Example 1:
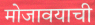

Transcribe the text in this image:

मोजावयाची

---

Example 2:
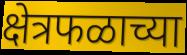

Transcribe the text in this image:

क्षेत्रफळाच्या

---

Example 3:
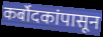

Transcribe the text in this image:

कर्बोदकांपासून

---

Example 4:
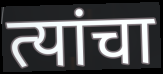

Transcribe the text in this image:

त्‍यांचा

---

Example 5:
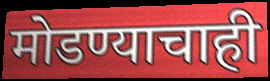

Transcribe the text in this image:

मोडण्याचाही